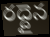
రద్దైన